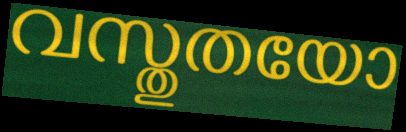
വസ്തുതയോ